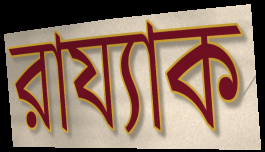
রায্যাক